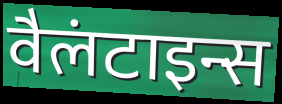
वैलंटाइन्स